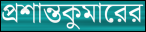
প্রশান্তকুমারের